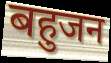
बहुजन